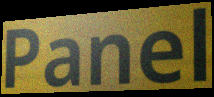
Panel